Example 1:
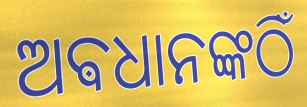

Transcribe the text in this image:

ଅଵଧାନଙ୍କଠିଁ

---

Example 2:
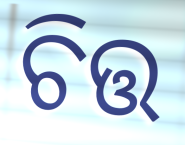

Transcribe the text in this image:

ଚିତ୍ତ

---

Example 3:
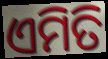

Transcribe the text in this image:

ଏମିତି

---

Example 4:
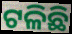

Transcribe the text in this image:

ଟଳିଛି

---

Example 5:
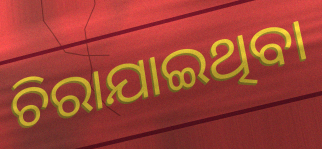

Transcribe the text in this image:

ଚିରାଯାଇଥିବା